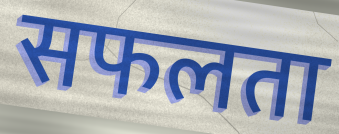
सफलता